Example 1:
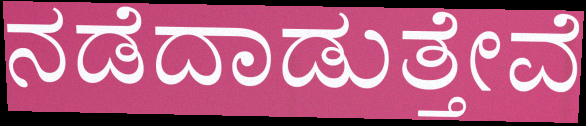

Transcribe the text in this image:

ನಡೆದಾಡುತ್ತೇವೆ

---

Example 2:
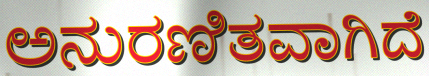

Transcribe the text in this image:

ಅನುರಣಿತವಾಗಿದೆ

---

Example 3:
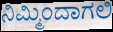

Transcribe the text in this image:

ನಿಮ್ಮಿಂದಾಗಲಿ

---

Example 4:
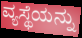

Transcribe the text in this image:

ವ್ಯಸ್ಥೆಯನ್ನು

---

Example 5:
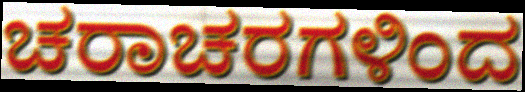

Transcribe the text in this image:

ಚರಾಚರಗಳಿಂದ